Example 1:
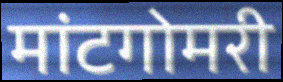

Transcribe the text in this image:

मांटगोमरी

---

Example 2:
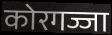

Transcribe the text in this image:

कोरगज्जा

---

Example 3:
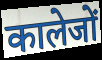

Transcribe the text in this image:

कालेजों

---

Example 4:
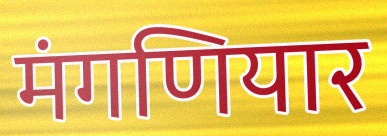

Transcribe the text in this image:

मंगणियार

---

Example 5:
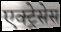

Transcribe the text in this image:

एक्ट्रेसेस